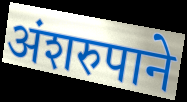
अंशरुपाने